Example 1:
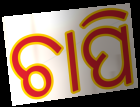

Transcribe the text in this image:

ଚାପି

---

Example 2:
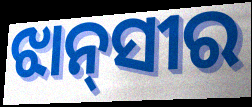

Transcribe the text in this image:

ଝାନ୍‌ସୀର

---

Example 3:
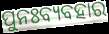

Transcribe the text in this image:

ପୁନଃବ୍ୟବହାର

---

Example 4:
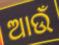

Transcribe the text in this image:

ଆଉଁ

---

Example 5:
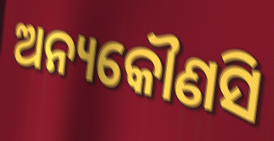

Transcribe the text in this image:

ଅନ୍ୟକୌଣସି